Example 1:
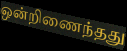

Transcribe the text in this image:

ஒன்றிணைந்தது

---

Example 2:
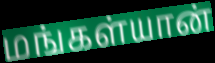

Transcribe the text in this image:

மங்கள்யான்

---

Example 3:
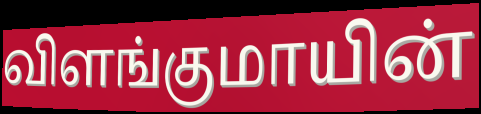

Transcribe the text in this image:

விளங்குமாயின்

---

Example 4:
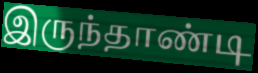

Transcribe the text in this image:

இருந்தாண்டி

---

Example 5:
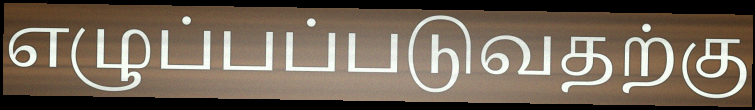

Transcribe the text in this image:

எழுப்பப்படுவதற்கு